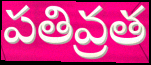
పతివ్రత